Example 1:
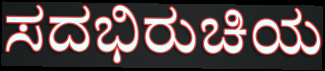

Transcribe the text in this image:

ಸದಭಿರುಚಿಯ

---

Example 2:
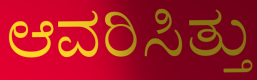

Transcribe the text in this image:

ಆವರಿಸಿತ್ತು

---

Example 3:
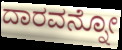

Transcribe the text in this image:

ದಾರವನ್ನೋ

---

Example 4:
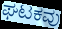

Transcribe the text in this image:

ಘಟಕವು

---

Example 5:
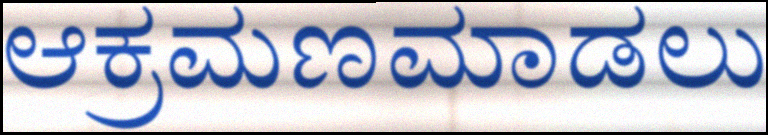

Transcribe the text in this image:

ಆಕ್ರಮಣಮಾಡಲು